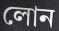
লোন